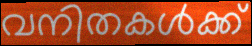
വനിതകൾക്ക്